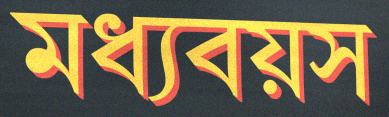
মধ্যবয়স